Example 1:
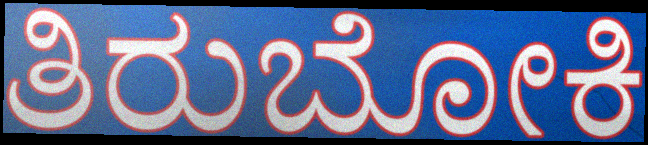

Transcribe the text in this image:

ತಿರುಬೋಕಿ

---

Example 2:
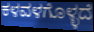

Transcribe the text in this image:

ಕಳವಳಗೊಳ್ಳದೆ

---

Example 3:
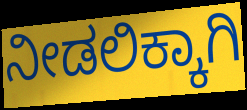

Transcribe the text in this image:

ನೀಡಲಿಕ್ಕಾಗಿ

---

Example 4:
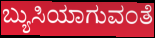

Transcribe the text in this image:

ಬ್ಯುಸಿಯಾಗುವಂತೆ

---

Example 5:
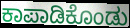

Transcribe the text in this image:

ಕಾಪಾಡಿಕೊಂಡು